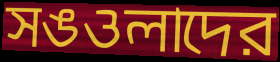
সঙওলাদের